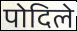
पोदिले